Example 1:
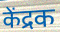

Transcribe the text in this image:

केंद्रक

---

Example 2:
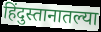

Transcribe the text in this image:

हिंदुस्तानातल्या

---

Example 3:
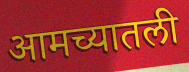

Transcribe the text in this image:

आमच्यातली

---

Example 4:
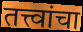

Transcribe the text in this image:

तत्त्वांचा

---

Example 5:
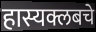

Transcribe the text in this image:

हास्यक्लबचे